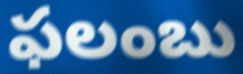
ఫలంబు